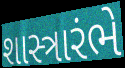
શાસ્ત્રારંભે